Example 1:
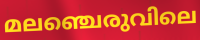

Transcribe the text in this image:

മലഞ്ചെരുവിലെ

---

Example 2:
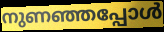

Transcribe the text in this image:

നുണഞ്ഞപ്പോൾ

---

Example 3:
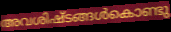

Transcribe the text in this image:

അവശിഷ്ടങ്ങൾകൊണ്ടു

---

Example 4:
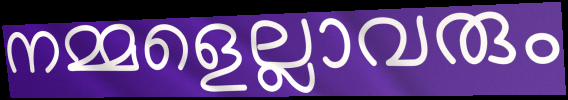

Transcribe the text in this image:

നമ്മളെല്ലാവരും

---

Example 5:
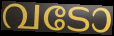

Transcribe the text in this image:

വടോ